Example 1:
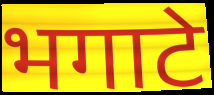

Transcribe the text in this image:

भगाटे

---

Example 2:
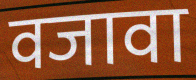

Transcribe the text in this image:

वजावा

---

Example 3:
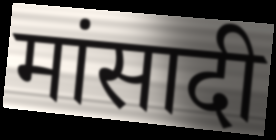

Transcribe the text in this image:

मांसादी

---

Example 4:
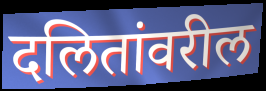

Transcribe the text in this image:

दलितांवरील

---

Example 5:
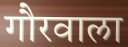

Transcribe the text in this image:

गौरवाला